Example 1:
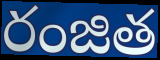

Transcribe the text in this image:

రంజిత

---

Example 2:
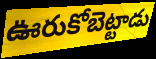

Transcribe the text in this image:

ఊరుకోబెట్టాడు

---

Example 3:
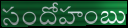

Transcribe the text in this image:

సందోహంబు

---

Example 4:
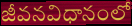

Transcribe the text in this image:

జీవనవిధానంలో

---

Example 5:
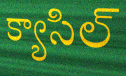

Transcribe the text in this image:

క్యాసిల్